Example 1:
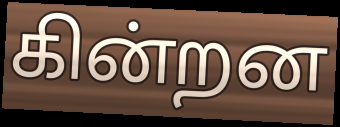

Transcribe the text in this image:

கின்றன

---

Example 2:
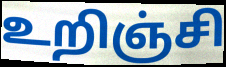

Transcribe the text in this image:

உறிஞ்சி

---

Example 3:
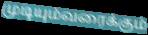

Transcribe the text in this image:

முடியும்வரைக்கும்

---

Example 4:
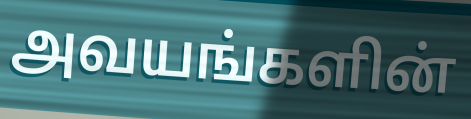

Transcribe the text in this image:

அவயங்களின்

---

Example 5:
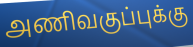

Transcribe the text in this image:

அணிவகுப்புக்கு